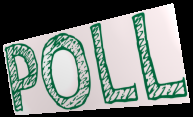
POLL